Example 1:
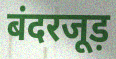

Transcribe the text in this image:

बंदरजूड़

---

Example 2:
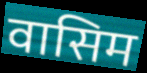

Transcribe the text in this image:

वासिम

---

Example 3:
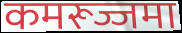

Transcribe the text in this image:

कमरूज्जमा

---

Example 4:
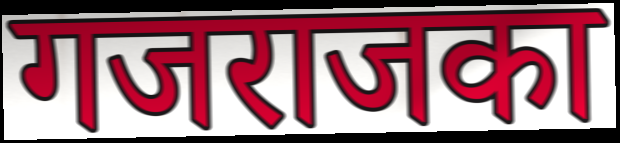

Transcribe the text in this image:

गजराजका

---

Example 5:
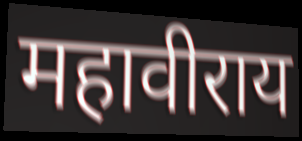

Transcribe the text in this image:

महावीराय